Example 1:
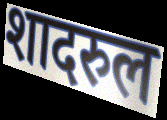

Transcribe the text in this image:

शादरुल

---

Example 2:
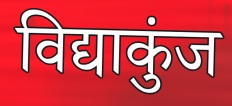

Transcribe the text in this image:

विद्याकुंज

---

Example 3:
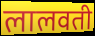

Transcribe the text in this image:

लालवती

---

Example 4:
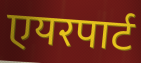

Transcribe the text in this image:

एयरपार्ट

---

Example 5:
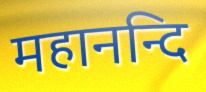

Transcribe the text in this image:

महानन्दि